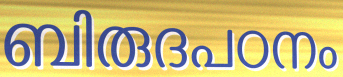
ബിരുദപഠനം